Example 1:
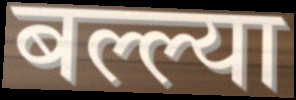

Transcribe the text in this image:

बल्ल्या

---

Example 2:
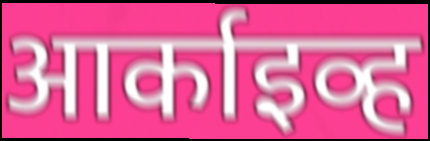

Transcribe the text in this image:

आर्काइव्ह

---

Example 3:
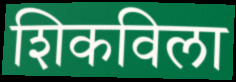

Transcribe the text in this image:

शिकविला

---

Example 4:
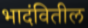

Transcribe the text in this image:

भादंवितील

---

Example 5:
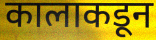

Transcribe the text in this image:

कालाकडून